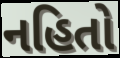
નહિતો